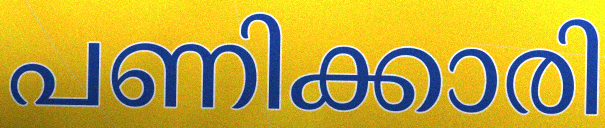
പണിക്കാരി